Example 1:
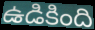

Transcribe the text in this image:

ఉడికింది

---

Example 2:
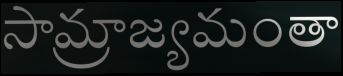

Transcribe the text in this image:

సామ్రాజ్యమంతా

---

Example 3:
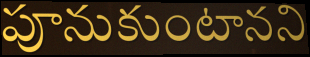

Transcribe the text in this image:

పూనుకుంటానని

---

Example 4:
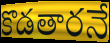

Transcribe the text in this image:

కొడతారనే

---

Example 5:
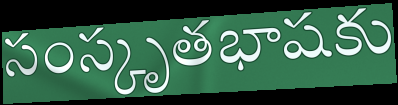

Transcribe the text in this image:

సంస్కృతభాషకు